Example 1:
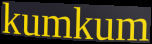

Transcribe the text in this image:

kumkum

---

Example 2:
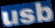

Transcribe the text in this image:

usb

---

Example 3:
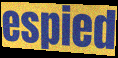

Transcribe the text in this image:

espied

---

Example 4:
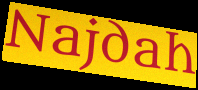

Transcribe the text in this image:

Najdah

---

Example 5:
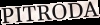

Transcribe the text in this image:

PITRODA